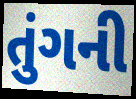
તુંગની